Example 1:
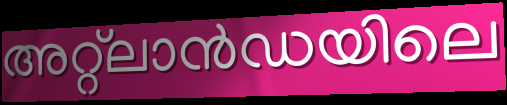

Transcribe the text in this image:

അറ്റ്ലാൻഡയിലെ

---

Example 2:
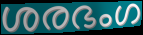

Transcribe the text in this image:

ശരഭംഗ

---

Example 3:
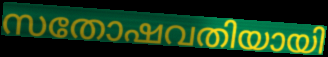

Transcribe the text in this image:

സതോഷവതിയായി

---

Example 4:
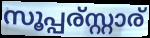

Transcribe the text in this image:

സൂപ്പര്സ്റ്റാര്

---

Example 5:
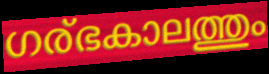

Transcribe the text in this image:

ഗര്ഭകാലത്തും